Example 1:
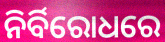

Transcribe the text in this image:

ନିର୍ବିରୋଧରେ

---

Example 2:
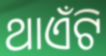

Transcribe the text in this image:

ଥାଏଁଟି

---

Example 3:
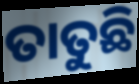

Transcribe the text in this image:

ତାତୁଛି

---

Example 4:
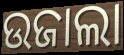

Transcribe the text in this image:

ଉଜାଲା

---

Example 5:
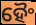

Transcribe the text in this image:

ହୈଂ